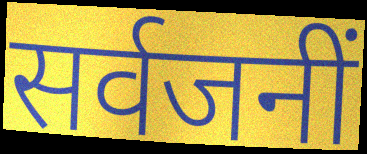
सर्वजनीं